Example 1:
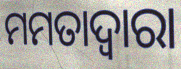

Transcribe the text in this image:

ମମତାଦ୍ୱାରା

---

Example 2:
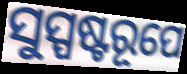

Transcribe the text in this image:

ସୁସ୍ପଷ୍ଟରୂପେ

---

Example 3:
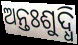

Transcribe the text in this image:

ଅନ୍ତଃଶୁଦ୍ଧି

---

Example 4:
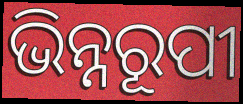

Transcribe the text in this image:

ଭିନ୍ନରୂପୀ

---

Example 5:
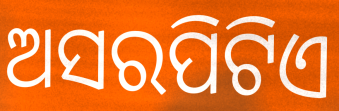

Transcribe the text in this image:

ଅସରପିଟିଏ